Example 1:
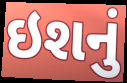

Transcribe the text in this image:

ઇશનું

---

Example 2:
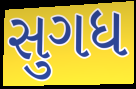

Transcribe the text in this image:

સુગધ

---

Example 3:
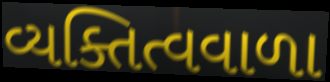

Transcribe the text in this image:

વ્યક્તિત્વવાળા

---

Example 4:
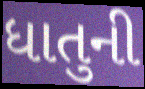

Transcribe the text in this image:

ધાતુની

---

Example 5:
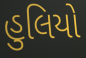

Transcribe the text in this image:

હુલિયો